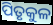
ପିତୃକୁଳ